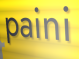
paini